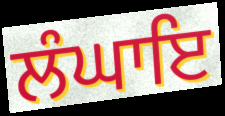
ਲੰਘਾਇ